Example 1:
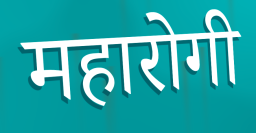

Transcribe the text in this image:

महारोगी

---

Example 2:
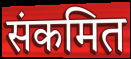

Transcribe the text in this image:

संकमित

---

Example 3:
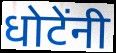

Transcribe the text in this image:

धोटेंनी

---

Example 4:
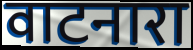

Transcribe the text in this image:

वाटनारा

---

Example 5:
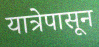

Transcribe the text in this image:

यात्रेपासून